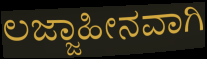
ಲಜ್ಜಾಹೀನವಾಗಿ